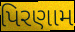
પિરણામ